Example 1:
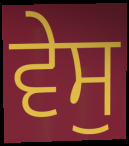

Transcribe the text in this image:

ਵੇਸੁ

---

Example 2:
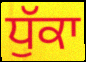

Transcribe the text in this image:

ਧੁੱਕਾ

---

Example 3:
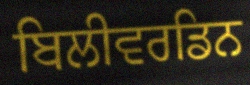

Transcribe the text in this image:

ਬਿਲੀਵਰਡਿਨ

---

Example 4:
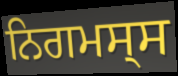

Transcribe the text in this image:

ਨਿਗਮਸ੍ਸ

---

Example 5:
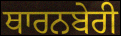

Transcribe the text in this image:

ਥਾਰਨਬੇਰੀ